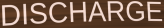
DISCHARGE